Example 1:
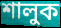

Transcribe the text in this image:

শালুক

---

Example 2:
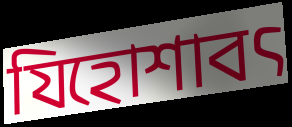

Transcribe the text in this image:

যিহোশাবৎ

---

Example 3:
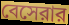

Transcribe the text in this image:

বেসেরার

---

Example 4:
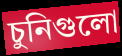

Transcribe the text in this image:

চুনিগুলো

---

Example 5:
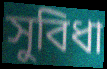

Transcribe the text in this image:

সুবিধা